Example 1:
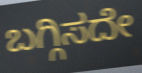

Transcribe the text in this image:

ಬಗ್ಗಿಸದೇ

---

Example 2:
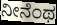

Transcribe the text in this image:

ನೀನೆಂಥ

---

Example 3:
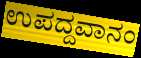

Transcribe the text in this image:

ಉಪದ್ದವಾನಂ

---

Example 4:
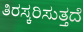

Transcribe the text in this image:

ತಿರಸ್ಕರಿಸುತ್ತದೆ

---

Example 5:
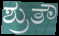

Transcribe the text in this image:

ಶ್ರುತೌ